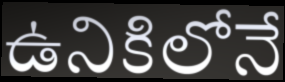
ఉనికిలోనే